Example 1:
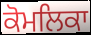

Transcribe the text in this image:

ਕੋਮਲਿਕਾ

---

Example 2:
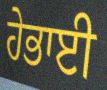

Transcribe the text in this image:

ਹੇਭਾਈ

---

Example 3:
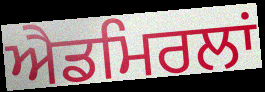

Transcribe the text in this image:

ਐਡਮਿਰਲਾਂ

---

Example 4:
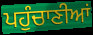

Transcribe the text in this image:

ਪਹੁੰਚਾਣੀਆਂ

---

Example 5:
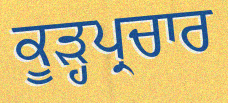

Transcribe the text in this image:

ਕੂੜ੍ਹਪ੍ਰਚਾਰ